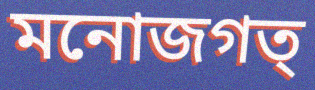
মনোজগত্